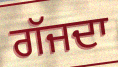
ਗੱਜਦਾ